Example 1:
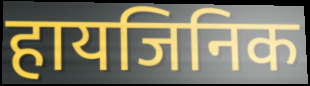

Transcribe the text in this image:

हायजिनिक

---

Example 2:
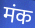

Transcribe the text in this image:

मंक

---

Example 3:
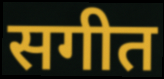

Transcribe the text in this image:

सगीत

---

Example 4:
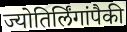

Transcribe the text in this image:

ज्योतिर्लिंगांपैकी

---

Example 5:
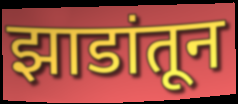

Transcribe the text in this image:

झाडांतून